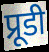
प्रूडी